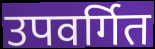
उपवर्गित